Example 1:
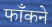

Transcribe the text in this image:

फाँकने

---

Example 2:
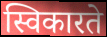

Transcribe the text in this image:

स्विकारते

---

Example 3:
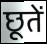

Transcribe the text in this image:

छूतें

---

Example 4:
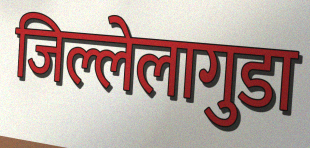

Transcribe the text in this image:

जिल्लेलागुडा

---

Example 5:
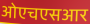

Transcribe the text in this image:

ओएचएसआर